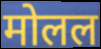
मोलल